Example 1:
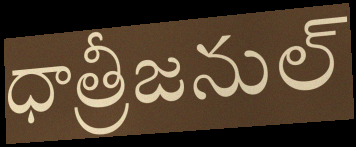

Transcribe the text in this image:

ధాత్రీజనుల్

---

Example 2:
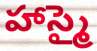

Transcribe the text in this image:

హాస్మై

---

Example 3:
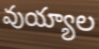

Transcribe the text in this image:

వుయ్యాల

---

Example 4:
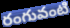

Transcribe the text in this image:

రంగువంటి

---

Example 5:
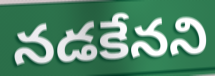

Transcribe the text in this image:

నడకేనని